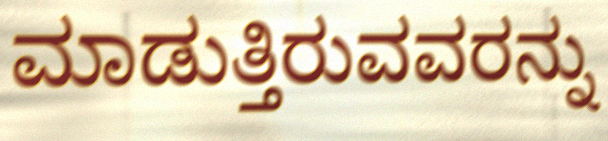
ಮಾಡುತ್ತಿರುವವರನ್ನು